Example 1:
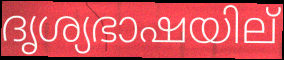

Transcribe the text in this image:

ദൃശ്യഭാഷയില്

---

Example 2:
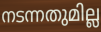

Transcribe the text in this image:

നടന്നതുമില്ല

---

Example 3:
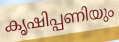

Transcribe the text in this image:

കൃഷിപ്പണിയും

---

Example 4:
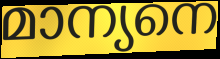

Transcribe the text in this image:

മാന്യനെ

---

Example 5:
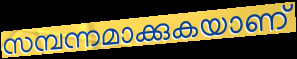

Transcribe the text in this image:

സമ്പന്നമാക്കുകയാണ്